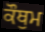
ਕੌਥੁਮ